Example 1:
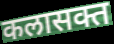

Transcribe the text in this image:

कलासक्त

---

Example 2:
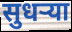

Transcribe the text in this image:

सुधर्‍या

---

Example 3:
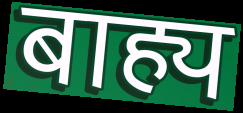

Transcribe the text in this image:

बाह्य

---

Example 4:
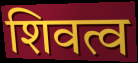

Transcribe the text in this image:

शिवत्व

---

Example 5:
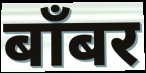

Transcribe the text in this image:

बाँबर